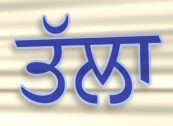
ਤੱਲਾ